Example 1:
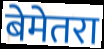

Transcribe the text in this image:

बेमेतरा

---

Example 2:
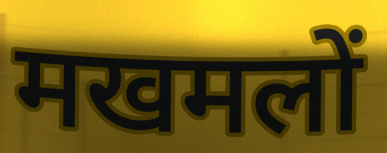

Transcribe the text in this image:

मखमलों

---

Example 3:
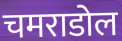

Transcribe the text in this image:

चमराडोल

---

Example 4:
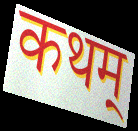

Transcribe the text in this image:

कथम्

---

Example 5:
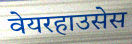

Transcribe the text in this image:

वेयरहाउसेस